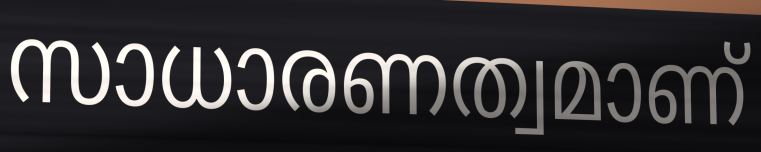
സാധാരണത്വമാണ്